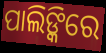
ପାଲିଙ୍କିରେ